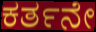
ಕರ್ತನೇ